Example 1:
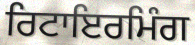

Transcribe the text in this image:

ਰਿਟਾਇਰਮਿੰਗ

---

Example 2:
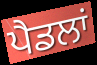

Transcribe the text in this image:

ਪੈਡਲਾਂ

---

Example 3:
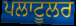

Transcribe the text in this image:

ਪਲਾਟੂਲਰ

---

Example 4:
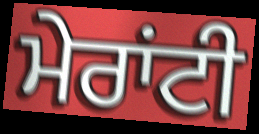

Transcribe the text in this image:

ਮੇਰਾਂਟੀ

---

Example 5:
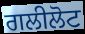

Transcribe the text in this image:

ਗਲੀਲੋਟ